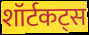
शॉर्टकट्स